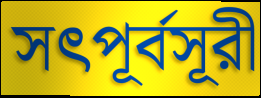
সৎপূর্বসূরী